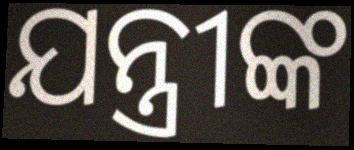
ଯନ୍ତ୍ରୀଙ୍କ